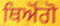
ਥਿਅੋਂਗੋ